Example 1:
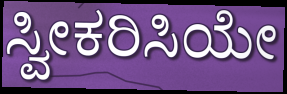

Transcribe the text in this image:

ಸ್ವೀಕರಿಸಿಯೇ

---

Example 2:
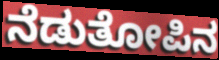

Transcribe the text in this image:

ನೆಡುತೋಪಿನ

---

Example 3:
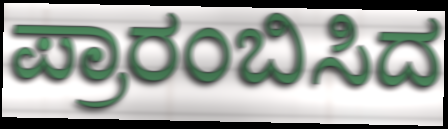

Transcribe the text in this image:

ಪ್ರಾರಂಬಿಸಿದ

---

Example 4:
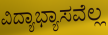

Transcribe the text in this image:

ವಿದ್ಯಾಭ್ಯಾಸವೆಲ್ಲ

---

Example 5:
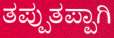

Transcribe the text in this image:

ತಪ್ಪುತಪ್ಪಾಗಿ